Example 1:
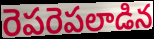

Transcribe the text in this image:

రెపరెపలాడిన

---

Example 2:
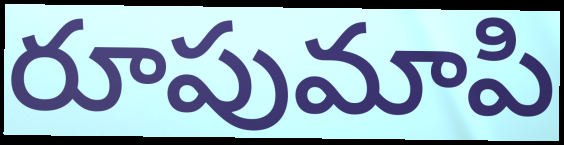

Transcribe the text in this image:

రూపుమాపి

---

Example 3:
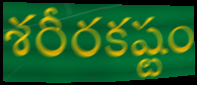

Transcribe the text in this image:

శరీరకష్టం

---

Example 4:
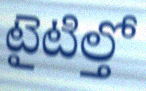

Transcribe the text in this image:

టైటిల్తో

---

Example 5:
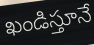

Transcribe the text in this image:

ఖండిస్తూనే